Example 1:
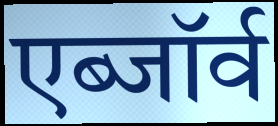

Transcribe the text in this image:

एब्जॉर्व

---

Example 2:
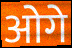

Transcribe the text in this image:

ओगे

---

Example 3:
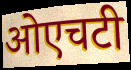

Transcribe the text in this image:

ओएचटी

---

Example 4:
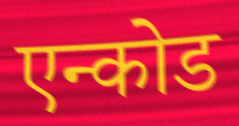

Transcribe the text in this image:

एन्कोड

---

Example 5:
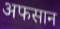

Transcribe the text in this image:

अफसान